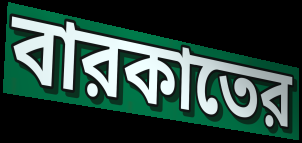
বারকাতের